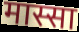
मास्सा